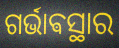
ଗର୍ଭାଵସ୍ଥାର